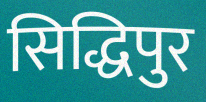
सिद्धिपुर